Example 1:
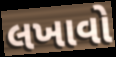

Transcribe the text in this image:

લખાવો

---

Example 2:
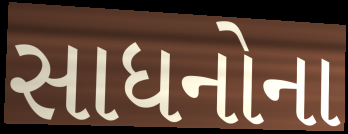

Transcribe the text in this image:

સાધનોના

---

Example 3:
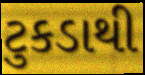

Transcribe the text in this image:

ટુકડાથી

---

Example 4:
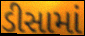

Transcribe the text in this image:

ડીસામાં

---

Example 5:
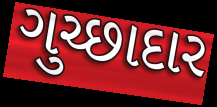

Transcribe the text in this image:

ગુચ્છાદાર